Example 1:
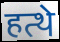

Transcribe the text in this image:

हत्थे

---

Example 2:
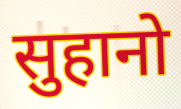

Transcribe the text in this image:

सुहानो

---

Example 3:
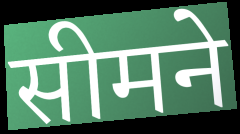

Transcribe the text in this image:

सीमने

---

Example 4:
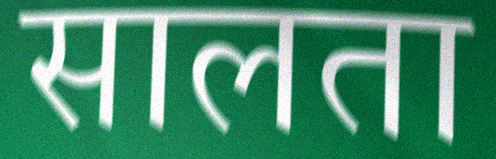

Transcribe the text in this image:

सालता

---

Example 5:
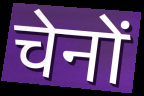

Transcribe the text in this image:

चेनों